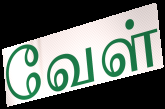
வேள்